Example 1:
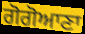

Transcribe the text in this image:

ਗੋਗੋਆਣਾ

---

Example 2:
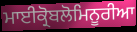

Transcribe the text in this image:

ਮਾਈਕ੍ਰੋਬਲੋਮਿਨੂਰੀਆ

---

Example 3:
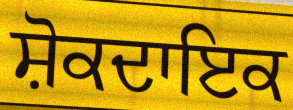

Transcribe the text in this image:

ਸ਼ੋਕਦਾਇਕ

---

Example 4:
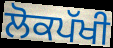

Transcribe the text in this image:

ਲੋਕਪੱਖੀ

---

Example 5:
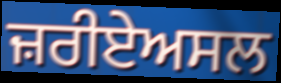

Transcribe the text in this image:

ਜ਼ਰੀਏਅਸਲ